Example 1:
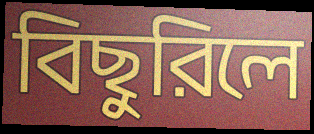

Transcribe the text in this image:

বিছুরিলে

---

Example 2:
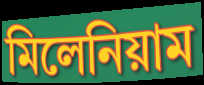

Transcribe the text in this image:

মিলেনিয়াম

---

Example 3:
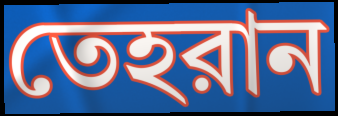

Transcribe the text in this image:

তেহরান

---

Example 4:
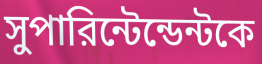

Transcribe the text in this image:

সুপারিন্টেন্ডেন্টকে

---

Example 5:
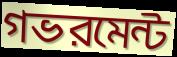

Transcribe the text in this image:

গভরমেন্ট